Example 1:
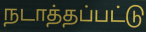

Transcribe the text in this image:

நடாத்தப்பட்டு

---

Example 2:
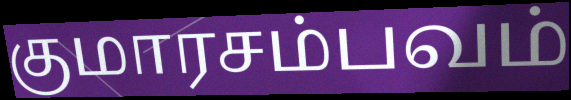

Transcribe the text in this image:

குமாரசம்பவம்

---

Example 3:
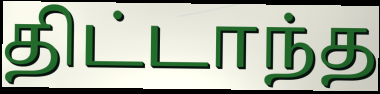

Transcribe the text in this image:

திட்டாந்த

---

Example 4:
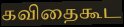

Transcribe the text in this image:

கவிதைகூட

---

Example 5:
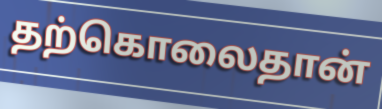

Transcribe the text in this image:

தற்கொலைதான்